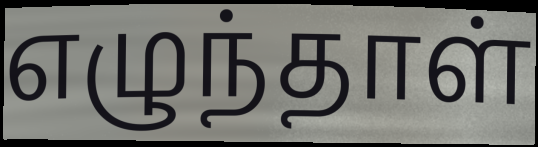
எழுந்தாள்